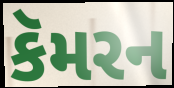
કૅમરન